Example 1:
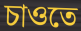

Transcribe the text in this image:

চাওতে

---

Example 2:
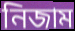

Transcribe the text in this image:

নিজাম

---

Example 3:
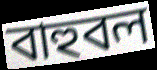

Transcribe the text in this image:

বাহুবল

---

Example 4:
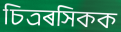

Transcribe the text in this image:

চিত্ৰৰসিকক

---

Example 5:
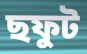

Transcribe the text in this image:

ছফুট